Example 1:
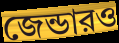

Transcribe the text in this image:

জেন্ডারও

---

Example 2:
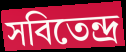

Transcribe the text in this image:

সবিতেন্দ্র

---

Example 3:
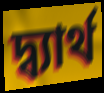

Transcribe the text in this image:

দ্ব্যার্থ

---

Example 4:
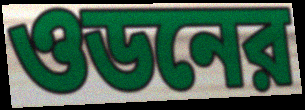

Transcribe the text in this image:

ওডনের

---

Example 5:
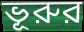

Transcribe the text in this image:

ভূরুর